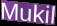
Mukil